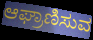
ಆಘ್ರಾಣಿಸುವ